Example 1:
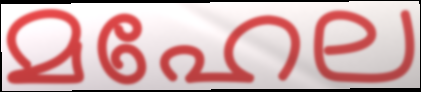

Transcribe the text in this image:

മഹേല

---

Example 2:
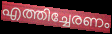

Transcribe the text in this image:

എത്തിച്ചേരണം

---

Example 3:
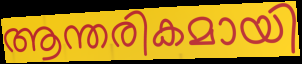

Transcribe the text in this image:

ആന്തരികമായി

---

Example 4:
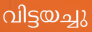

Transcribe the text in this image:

വിട്ടയച്ചു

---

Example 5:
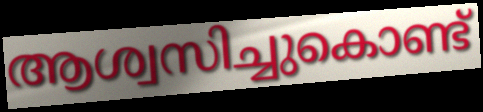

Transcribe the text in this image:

ആശ്വസിച്ചുകൊണ്ട്